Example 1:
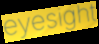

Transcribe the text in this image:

eyesight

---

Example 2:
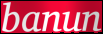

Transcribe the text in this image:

banun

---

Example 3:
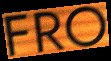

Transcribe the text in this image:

FRO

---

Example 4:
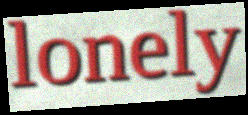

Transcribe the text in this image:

lonely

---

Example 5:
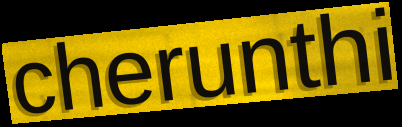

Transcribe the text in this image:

cherunthi